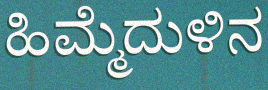
ಹಿಮ್ಮೆದುಳಿನ